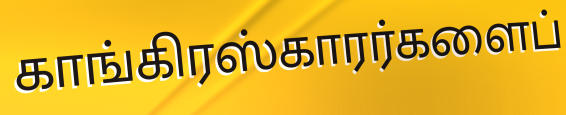
காங்கிரஸ்காரர்களைப்